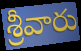
శ్రీవారు